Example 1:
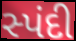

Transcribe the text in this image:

સ્પંદી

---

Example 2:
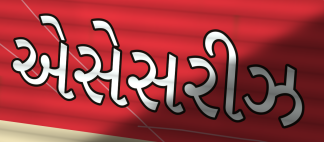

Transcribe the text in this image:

એસેસરીઝ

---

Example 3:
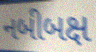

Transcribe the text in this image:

નબીબક્ષ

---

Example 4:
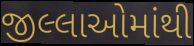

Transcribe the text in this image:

જીલ્લાઓમાંથી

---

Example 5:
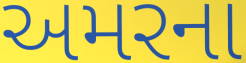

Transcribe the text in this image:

અમરના